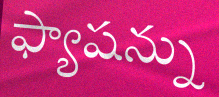
ఫ్యాషన్ను